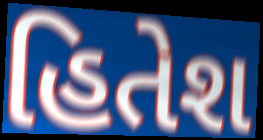
હિતેશ